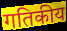
गतिकीय